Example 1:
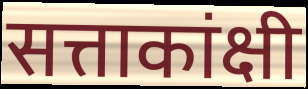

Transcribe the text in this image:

सत्ताकांक्षी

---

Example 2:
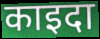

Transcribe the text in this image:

काइदा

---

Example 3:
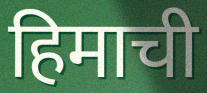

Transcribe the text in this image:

हिमाची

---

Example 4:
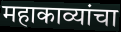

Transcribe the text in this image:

महाकाव्यांचा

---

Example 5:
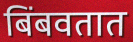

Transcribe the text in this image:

बिंबवतात